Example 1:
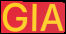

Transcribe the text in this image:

GIA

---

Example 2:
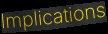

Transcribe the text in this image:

Implications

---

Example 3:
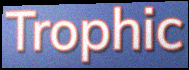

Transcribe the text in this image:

Trophic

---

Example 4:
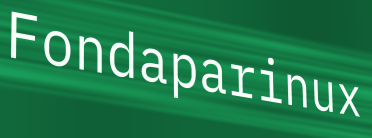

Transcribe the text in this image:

Fondaparinux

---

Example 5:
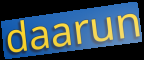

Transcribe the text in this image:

daarun